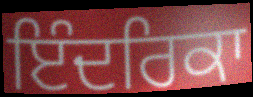
ਇੰਦਰਿਕਾ